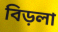
বিড়লা